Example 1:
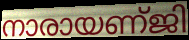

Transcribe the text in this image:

നാരായണ്ജി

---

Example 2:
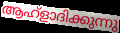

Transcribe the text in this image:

ആഹ്ളാദിക്കുന്നു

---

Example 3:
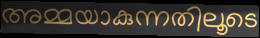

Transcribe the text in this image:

അമ്മയാകുന്നതിലൂടെ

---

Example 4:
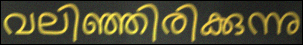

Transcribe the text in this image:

വലിഞ്ഞിരിക്കുന്നു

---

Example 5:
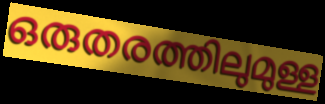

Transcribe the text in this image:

ഒരുതരത്തിലുമുള്ള